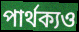
পার্থক্যও